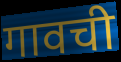
गावची